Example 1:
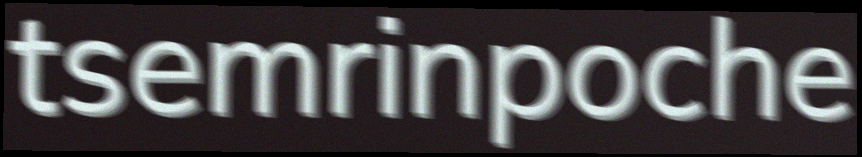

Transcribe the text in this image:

tsemrinpoche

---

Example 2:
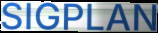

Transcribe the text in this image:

SIGPLAN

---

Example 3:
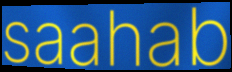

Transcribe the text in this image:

saahab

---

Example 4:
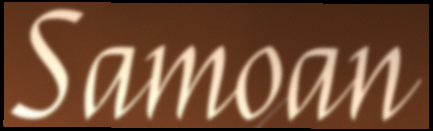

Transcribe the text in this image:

Samoan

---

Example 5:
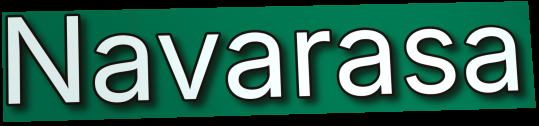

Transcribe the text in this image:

Navarasa